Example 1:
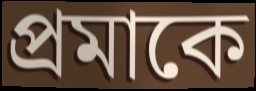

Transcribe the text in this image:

প্রমাকে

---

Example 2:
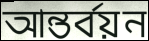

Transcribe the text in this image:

আন্তর্বয়ন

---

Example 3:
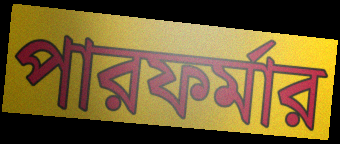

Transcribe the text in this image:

পারফর্মার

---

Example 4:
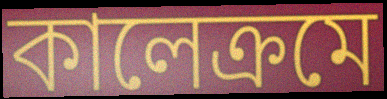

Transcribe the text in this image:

কালেক্রমে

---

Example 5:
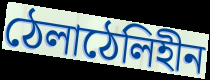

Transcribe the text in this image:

ঠেলাঠেলিহীন